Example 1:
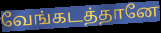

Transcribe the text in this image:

வேங்கடத்தானே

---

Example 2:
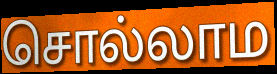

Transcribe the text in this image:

சொல்லாம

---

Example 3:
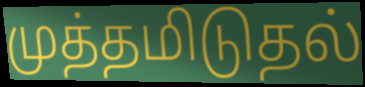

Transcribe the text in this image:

முத்தமிடுதல்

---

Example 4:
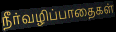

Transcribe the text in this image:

நீர்வழிப்பாதைகள்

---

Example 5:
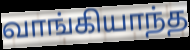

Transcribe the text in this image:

வாங்கியாந்த